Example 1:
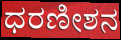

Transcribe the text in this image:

ಧರಣೀಶನ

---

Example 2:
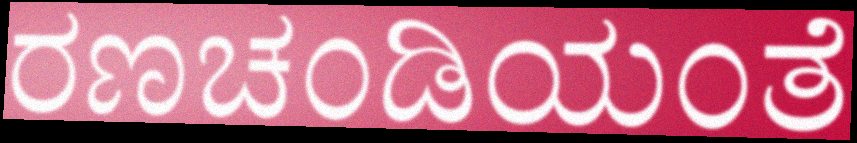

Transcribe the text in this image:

ರಣಚಂಡಿಯಂತೆ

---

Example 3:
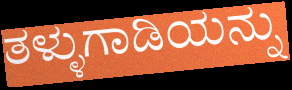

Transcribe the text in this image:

ತಳ್ಳುಗಾಡಿಯನ್ನು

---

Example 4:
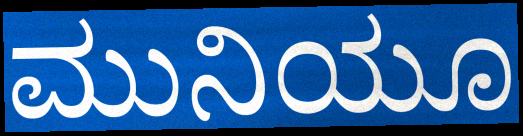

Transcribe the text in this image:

ಮುನಿಯೂ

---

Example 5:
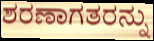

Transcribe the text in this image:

ಶರಣಾಗತರನ್ನು